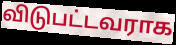
விடுபட்டவராக